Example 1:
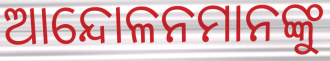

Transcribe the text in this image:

ଆନ୍ଦୋଳନମାନଙ୍କୁ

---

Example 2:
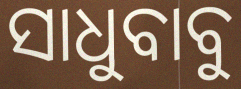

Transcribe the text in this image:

ସାଧୁବାବୁ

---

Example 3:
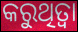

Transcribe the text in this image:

କରୁଥିତ୍ବା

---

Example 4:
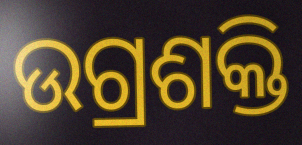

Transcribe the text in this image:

ଉଗ୍ରଶକ୍ତି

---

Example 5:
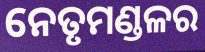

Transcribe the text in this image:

ନେତୃମଣ୍ଡଳର